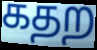
கதற